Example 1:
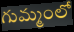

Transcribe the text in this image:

గుమ్మంలో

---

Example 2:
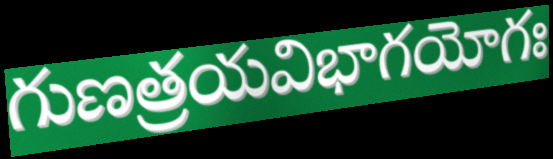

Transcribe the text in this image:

గుణత్రయవిభాగయోగః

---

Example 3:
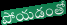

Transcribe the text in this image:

పోయడంతో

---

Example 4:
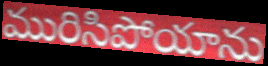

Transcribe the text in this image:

మురిసిపోయాను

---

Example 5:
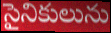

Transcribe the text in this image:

సైనికులును